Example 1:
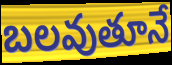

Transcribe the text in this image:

బలవుతూనే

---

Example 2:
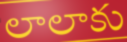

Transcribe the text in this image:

లాలాకు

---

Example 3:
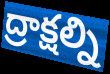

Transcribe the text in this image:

ద్రాక్షల్ని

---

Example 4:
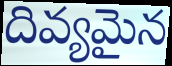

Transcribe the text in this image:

దివ్యమైన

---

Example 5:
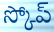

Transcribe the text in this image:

స్కోప్